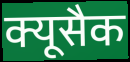
क्यूसैक